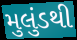
મુલુંડથી